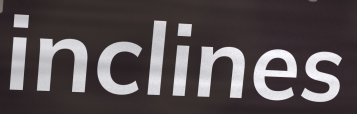
inclines